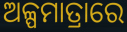
ଅଳ୍ପମାତ୍ରାରେ